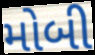
મોબી